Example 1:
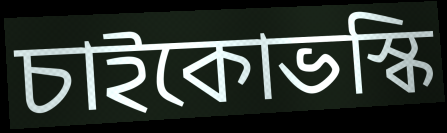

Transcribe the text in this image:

চাইকোভস্কি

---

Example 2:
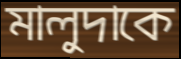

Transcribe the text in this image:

মালুদাকে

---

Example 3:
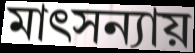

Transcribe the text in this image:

মাৎসন্যায়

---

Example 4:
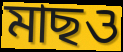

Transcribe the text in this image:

মাছও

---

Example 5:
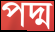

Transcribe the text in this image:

পদ্ম